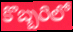
కొబ్బరిలో